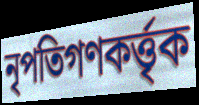
নৃপতিগণকর্ত্তৃক